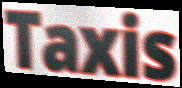
Taxis